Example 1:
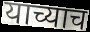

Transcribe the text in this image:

याच्याच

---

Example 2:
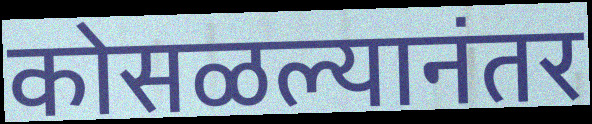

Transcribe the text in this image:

कोसळल्यानंतर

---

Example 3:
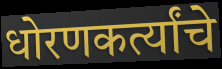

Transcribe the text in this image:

धोरणकर्त्यांचे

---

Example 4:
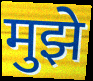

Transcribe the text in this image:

मुझे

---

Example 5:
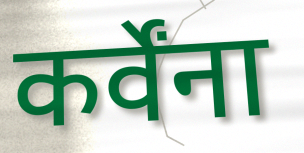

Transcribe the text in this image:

कर्वेंना